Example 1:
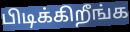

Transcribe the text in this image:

பிடிக்கிறீங்க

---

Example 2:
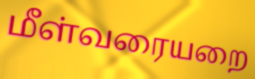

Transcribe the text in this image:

மீள்வரையறை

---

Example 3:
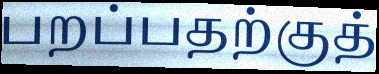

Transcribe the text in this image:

பறப்பதற்குத்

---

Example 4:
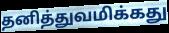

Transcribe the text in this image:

தனித்துவமிக்கது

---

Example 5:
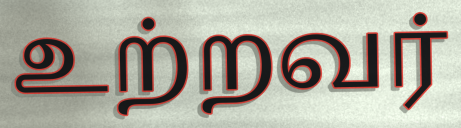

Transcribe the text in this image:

உற்றவர்